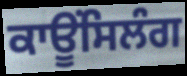
ਕਾਊਂਸਿਲੰਗ